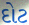
દોટ